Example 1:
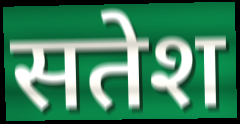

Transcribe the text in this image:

सतेश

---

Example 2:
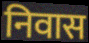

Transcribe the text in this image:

निवास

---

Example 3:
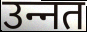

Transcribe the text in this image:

उन्‍नत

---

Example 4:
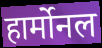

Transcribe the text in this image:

हार्मोनल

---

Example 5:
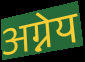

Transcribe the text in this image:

अग्नेय